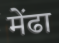
मेंढा